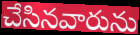
చేసినవారును